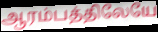
ஆரம்பத்திலேயே